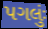
પગલુંઃ